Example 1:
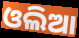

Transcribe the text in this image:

ଓଲିଆ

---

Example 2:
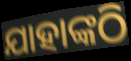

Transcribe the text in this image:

ଯାହାଙ୍କଠି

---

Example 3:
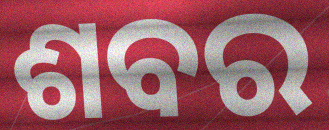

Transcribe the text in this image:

ଶବର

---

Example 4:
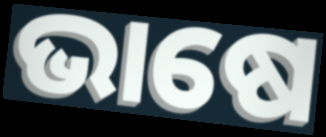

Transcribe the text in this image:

ଭାଷେ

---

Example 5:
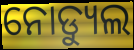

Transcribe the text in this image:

ନୋଡ୍ୟୁଲ